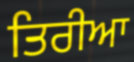
ਤਿਰੀਆ